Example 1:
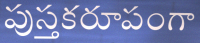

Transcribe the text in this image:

పుస్తకరూపంగా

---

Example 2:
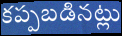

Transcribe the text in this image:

కప్పబడినట్లు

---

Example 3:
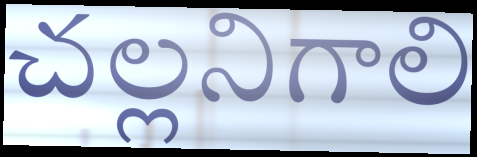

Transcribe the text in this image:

చల్లనిగాలి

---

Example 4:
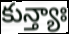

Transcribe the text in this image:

కున్త్యాః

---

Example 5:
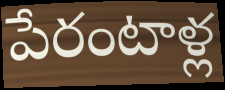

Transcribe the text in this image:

పేరంటాళ్ల